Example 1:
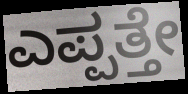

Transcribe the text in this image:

ಎಪ್ಪತ್ತೇ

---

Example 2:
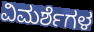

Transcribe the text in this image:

ವಿಮರ್ಶೆಗಳ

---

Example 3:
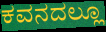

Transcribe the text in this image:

ಕವನದಲ್ಲೂ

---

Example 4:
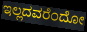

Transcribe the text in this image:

ಇಲ್ಲದವರೆಂದೋ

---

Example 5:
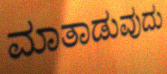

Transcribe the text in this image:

ಮಾತಾಡುವುದು